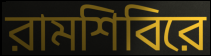
রামশিবিরে